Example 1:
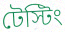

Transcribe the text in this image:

টেস্টিং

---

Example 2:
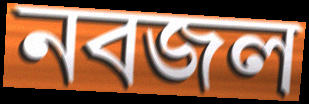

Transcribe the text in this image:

নবজল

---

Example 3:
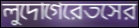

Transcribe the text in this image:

লুদোগেরেতসের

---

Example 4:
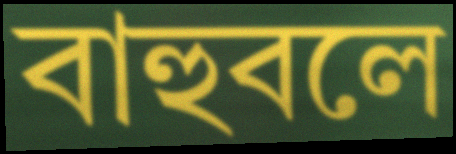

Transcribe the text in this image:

বাহুবলে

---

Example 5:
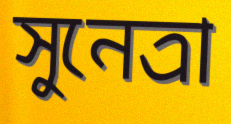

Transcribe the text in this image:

সুনেত্রা